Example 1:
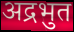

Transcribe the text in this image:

अद्रभुत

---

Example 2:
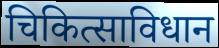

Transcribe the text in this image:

चिकित्साविधान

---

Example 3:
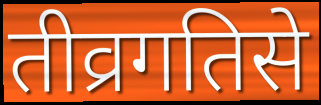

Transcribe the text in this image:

तीव्रगतिसे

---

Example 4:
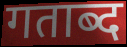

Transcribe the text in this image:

गताब्द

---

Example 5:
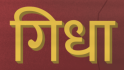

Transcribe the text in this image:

गिधा